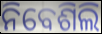
ନିବେଶିଲି